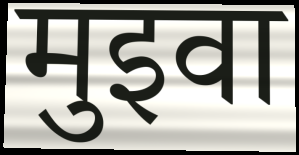
मुइवा